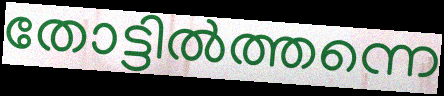
തോട്ടിൽത്തന്നെ